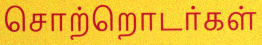
சொற்றொடர்கள்